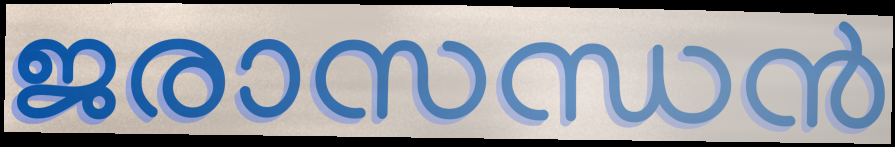
ജരാസന്ധൻ